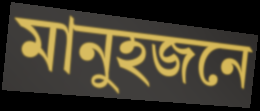
মানুহজনে